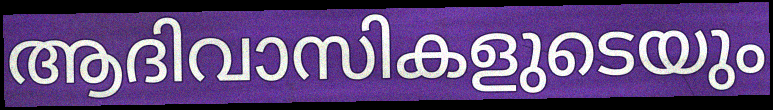
ആദിവാസികളുടെയും